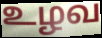
உழவ